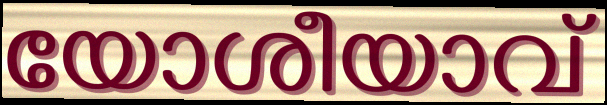
യോശീയാവ്